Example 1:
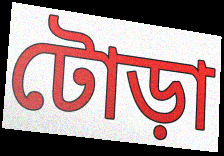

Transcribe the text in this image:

টোড়া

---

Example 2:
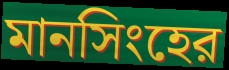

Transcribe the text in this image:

মানসিংহের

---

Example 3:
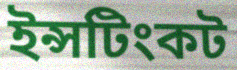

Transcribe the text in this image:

ইন্সটিংকট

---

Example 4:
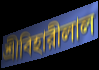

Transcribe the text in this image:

শ্রীবিহারীলাল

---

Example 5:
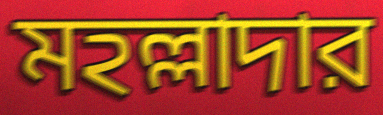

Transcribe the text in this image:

মহল্লাদার